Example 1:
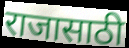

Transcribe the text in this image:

राजासाठी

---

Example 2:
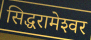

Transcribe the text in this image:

सिद्धरामेश्‍वर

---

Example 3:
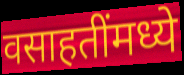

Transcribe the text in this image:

वसाहतींमध्ये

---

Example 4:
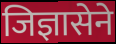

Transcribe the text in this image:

जिज्ञासेने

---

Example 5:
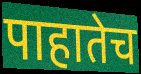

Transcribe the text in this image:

पाहातेच